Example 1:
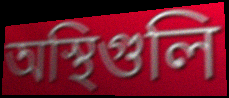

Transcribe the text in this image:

অস্থিগুলি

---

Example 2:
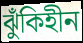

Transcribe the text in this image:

ঝুঁকিহীন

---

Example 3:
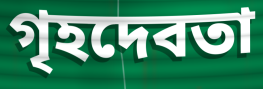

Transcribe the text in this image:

গৃহদেবতা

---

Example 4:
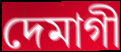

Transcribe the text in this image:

দেমাগী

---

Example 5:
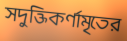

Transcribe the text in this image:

সদুক্তিকর্ণামৃতের